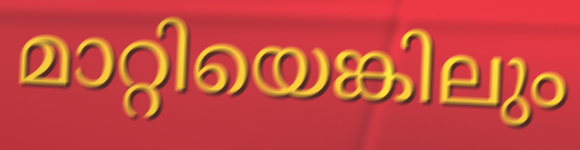
മാറ്റിയെങ്കിലും